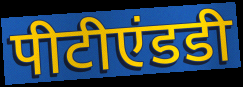
पीटीएंडडी